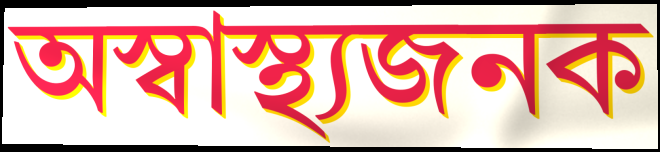
অস্বাস্থ্যজনক